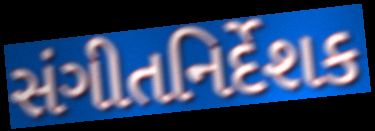
સંગીતનિર્દેશક